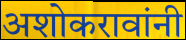
अशोकरावांनी